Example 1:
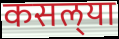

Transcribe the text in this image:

कसल्या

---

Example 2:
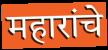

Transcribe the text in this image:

महारांचे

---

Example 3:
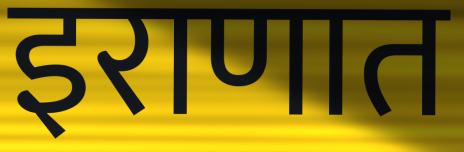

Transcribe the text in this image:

इराणात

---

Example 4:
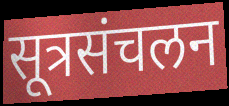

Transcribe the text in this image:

सूत्रसंचलन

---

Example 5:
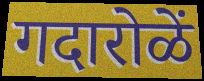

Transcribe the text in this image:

गदारोळें